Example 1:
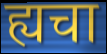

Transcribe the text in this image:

ह्यचा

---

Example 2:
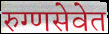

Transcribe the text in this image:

रुग्णसेवेत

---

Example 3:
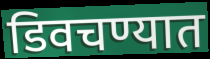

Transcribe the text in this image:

डिवचण्यात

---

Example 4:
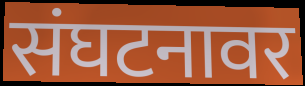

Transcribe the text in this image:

संघटनावर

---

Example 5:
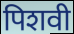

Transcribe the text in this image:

पिशवी